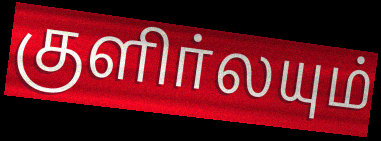
குளிர்லயும்